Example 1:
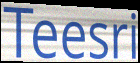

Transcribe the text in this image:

Teesri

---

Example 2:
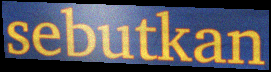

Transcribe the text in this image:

sebutkan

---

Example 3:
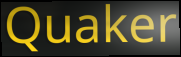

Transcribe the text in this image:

Quaker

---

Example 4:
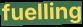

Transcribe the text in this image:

fuelling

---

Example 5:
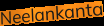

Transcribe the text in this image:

Neelankanta